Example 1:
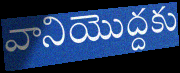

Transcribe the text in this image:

వానియొద్దకు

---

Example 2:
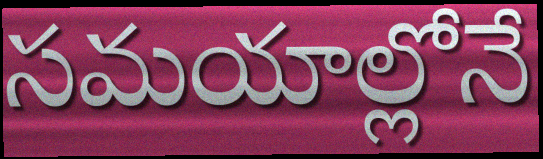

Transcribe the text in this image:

సమయాల్లోనే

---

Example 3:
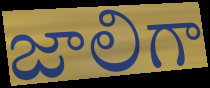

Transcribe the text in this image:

జాలిగా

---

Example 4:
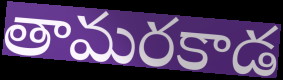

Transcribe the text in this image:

తామరకాడ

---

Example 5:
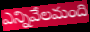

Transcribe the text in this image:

ఎన్నివేలమంది